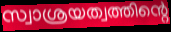
സ്വാശ്രയത്വത്തിന്റെ